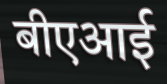
बीएआई